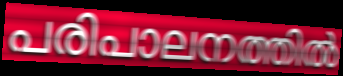
പരിപാലനത്തിൽ